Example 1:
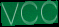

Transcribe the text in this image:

VCC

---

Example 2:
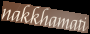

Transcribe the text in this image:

nakkhamati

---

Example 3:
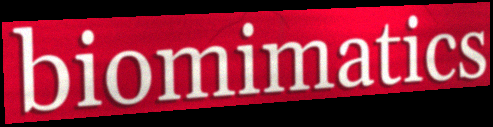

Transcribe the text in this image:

biomimatics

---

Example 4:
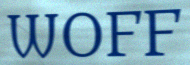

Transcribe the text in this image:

WOFF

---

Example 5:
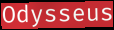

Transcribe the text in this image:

Odysseus